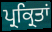
ਪ੍ਰਕ੍ਰਿਤਾਂ